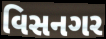
વિસનગર